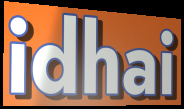
idhai